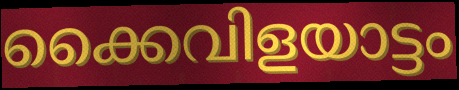
ക്കൈവിളയാട്ടം